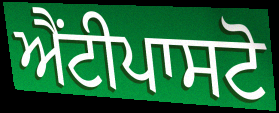
ਐਂਟੀਪਾਸਟੋ